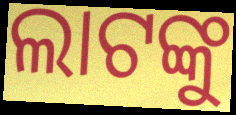
ଲାଟଙ୍କୁ